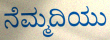
ನೆಮ್ಮದಿಯು